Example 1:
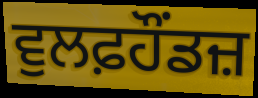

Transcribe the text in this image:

ਵੁਲਫ਼ਹੌਂਡਜ਼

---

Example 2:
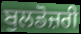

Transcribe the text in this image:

ਬੁਲਡੋਜ਼ਰੀ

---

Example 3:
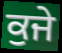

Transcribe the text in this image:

ਕੁਜੇ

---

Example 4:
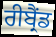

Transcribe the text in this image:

ਰੀਬ੍ਰੈਂਡ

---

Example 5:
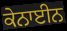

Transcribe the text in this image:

ਕੇਨਾਈਨ